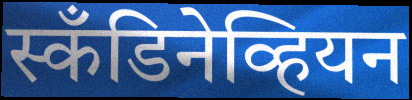
स्कँडिनेव्हियन